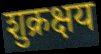
शुक्रक्षय